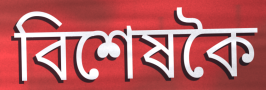
বিশেষকৈ